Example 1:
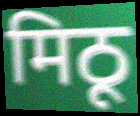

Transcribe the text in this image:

मिठू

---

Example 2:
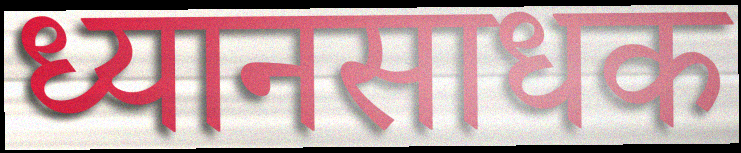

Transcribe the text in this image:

ध्यानसाधक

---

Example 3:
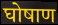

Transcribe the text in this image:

घोषाण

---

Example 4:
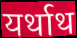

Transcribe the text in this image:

यर्थाथ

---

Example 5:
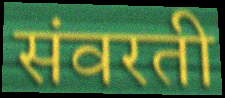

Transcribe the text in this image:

संवरती